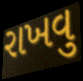
રાખવુ